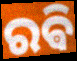
ରଵି